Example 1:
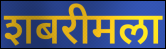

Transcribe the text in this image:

शबरीमला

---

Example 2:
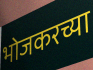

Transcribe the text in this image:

भोजकरच्या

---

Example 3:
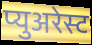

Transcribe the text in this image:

प्युअरेस्ट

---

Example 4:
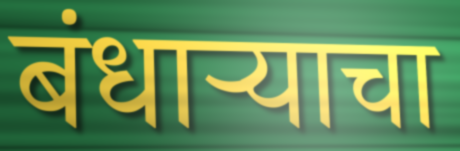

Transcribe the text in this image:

बंधार्‍याचा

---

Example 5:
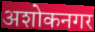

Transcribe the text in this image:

अशोकनगर